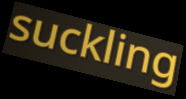
suckling